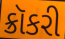
ક્રૉકરી